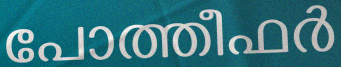
പോത്തീഫർ